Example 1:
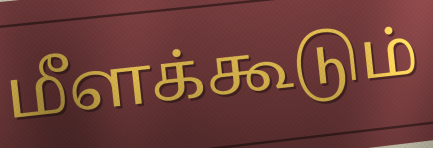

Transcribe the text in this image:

மீளக்கூடும்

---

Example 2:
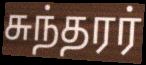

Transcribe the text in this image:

சுந்தரர்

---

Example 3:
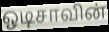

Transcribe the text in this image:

ஒடிசாவின்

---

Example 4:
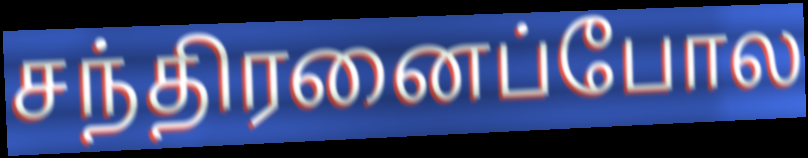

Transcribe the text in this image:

சந்திரனைப்போல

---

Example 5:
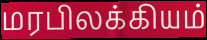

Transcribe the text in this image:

மரபிலக்கியம்